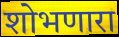
शोभणारा